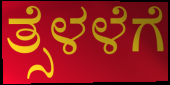
ತ್ಸೆಳಳೆಗೆ